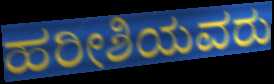
ಹರೀಶಿಯವರು